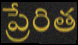
ప్రేరిత